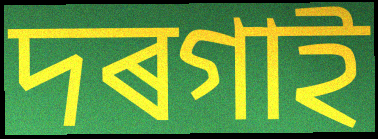
দৰগাই